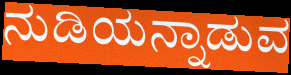
ನುಡಿಯನ್ನಾಡುವ